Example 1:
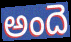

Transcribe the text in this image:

అందె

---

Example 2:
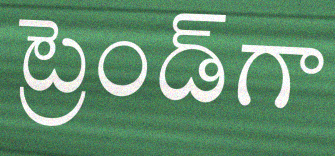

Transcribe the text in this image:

ట్రెండ్‌గా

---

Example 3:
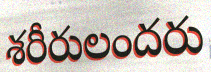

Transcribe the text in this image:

శరీరులందరు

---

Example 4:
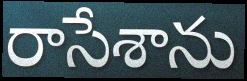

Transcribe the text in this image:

రాసేశాను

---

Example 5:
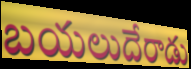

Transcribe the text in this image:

బయలుదేరాడు